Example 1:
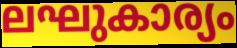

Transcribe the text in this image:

ലഘുകാര്യം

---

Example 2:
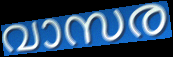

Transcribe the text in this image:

വാസര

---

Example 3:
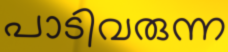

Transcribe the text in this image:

പാടിവരുന്ന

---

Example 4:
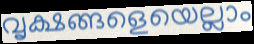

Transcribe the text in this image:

വൃക്ഷങ്ങളെയെല്ലാം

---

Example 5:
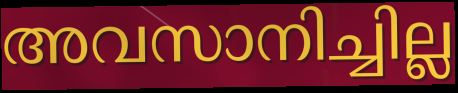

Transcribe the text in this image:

അവസാനിച്ചില്ല